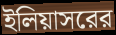
ইলিয়াসরের